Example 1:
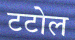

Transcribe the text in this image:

टटोल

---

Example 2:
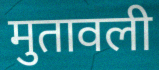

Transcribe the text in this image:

मुतावली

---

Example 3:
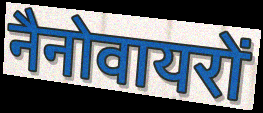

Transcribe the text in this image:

नैनोवायरों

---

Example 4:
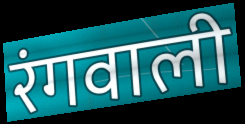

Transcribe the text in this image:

रंगवाली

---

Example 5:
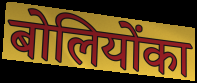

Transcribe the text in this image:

बोलियोंका